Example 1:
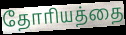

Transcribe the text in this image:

தோரியத்தை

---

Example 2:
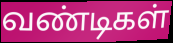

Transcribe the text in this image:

வண்டிகள்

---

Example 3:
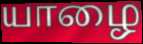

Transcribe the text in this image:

யாழை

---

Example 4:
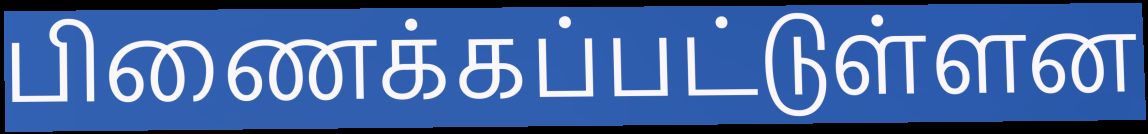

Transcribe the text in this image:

பிணைக்கப்பட்டுள்ளன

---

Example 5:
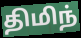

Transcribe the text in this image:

திமிந்